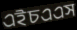
এইচএএস